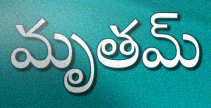
మృతమ్